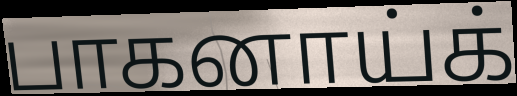
பாகனாய்க்